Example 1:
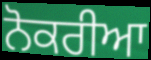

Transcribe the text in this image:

ਨੋਕਰੀਆ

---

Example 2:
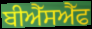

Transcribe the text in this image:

ਬੀਐੱਸਐੱਫ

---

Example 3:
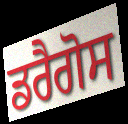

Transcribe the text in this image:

ਡਰੈਗੋਸ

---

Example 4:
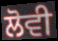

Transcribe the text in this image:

ਲੋਵੀ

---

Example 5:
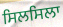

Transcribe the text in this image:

ਸਿਲਸਿਲਾ